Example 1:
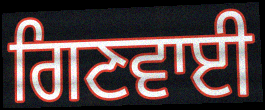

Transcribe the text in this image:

ਗਿਣਵਾਈ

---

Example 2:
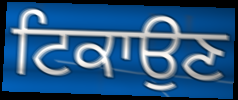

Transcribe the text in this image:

ਟਿਕਾਉਣ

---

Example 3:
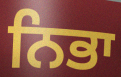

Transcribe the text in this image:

ਨਿਭਾ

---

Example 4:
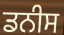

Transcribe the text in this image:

ਡਨੀਸ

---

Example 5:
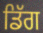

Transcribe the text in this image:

ਡਿੱਗ